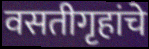
वसतीगृहांचे